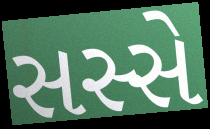
સસ્સે